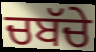
ਚਬੱਚੇ